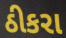
ઠીકરા